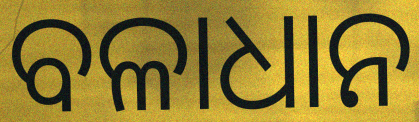
ବଳାଧାନ